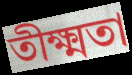
তীক্ষ্মতা